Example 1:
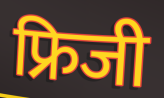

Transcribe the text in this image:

फ्रिजी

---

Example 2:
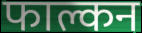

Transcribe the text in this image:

फाल्कन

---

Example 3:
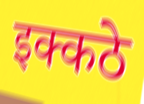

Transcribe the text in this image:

इक्कठे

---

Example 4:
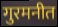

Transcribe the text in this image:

गुरमनीत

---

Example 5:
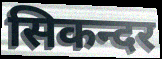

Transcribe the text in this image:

सिकन्दर